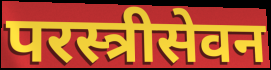
परस्त्रीसेवन